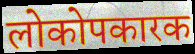
लोकोपकारक